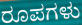
ರೂಪಗಳು